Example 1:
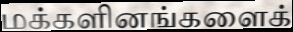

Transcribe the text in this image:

மக்களினங்களைக்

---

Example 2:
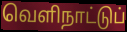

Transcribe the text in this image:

வெளிநாட்டுப்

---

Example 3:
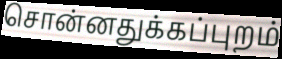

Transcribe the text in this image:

சொன்னதுக்கப்புறம்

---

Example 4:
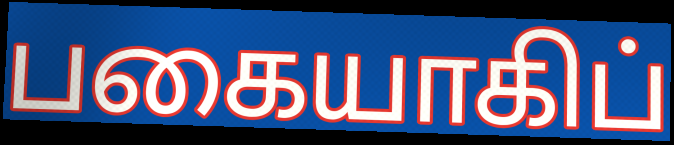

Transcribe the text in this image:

பகையாகிப்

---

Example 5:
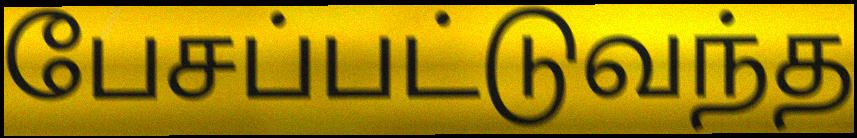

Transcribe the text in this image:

பேசப்பட்டுவந்த